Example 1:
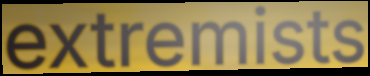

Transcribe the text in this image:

extremists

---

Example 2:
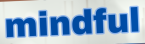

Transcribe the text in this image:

mindful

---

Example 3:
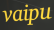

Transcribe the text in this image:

vaipu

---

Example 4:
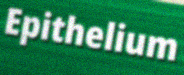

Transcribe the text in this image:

Epithelium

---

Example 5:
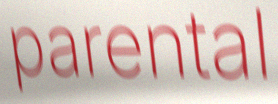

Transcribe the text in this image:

parental